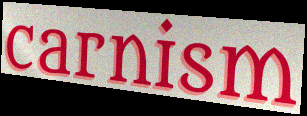
carnism